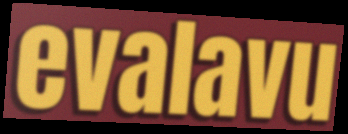
evalavu